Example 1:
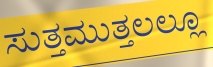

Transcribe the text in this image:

ಸುತ್ತಮುತ್ತಲಲ್ಲೂ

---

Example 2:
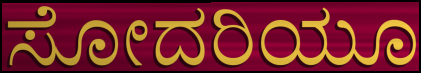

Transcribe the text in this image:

ಸೋದರಿಯೂ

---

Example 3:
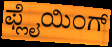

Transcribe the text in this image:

ಫ್ಲೈಯಿಂಗ್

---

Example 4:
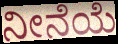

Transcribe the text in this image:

ನೀನೆಯೆ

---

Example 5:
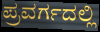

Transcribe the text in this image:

ಪ್ರವರ್ಗದಲ್ಲಿ